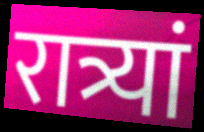
रात्र्यां